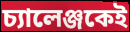
চ্যালেঞ্জকেই